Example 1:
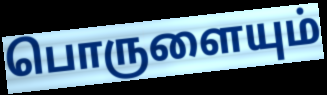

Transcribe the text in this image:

பொருளையும்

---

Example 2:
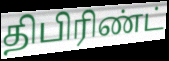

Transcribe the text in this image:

திபிரிண்ட்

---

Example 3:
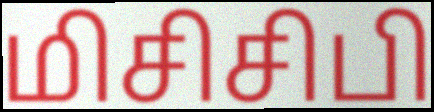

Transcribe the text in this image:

மிசிசிபி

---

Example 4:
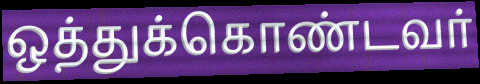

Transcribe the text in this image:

ஒத்துக்கொண்டவர்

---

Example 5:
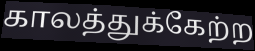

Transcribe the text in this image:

காலத்துக்கேற்ற